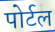
पोर्टल